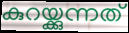
കുറയ്ക്കുന്നത്